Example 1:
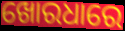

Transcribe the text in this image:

ଖୋରଧାରେ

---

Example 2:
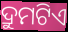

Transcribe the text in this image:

ଦ୍ରୁମଟିଏ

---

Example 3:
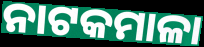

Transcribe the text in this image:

ନାଟକମାଳା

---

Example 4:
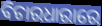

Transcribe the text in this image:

ବିଚାରଧାରାରେ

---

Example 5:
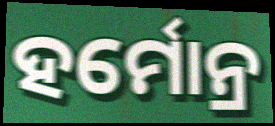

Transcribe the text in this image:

ହର୍ମୋନ୍ର